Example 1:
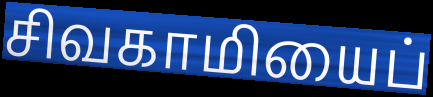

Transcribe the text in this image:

சிவகாமியைப்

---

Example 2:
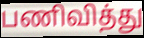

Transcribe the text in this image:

பணிவித்து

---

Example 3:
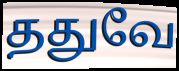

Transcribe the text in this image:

ததுவே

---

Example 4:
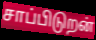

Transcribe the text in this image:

சாப்பிடுறன்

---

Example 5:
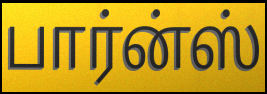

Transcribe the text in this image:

பார்ன்ஸ்